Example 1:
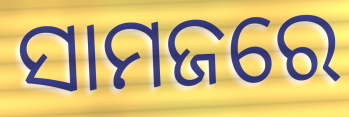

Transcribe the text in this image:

ସାମଜରେ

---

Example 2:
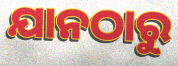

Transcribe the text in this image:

ଯାନଠାରୁ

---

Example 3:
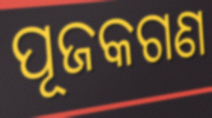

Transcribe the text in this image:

ପୂଜକଗଣ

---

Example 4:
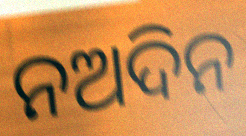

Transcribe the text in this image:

ନଅଦିନ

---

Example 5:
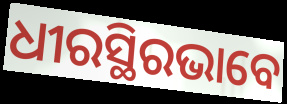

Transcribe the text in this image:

ଧୀରସ୍ଥିରଭାବେ